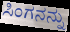
ಸಿಂಗನನ್ನು